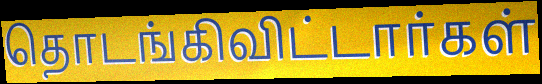
தொடங்கிவிட்டார்கள்